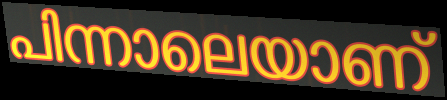
പിന്നാലെയാണ്